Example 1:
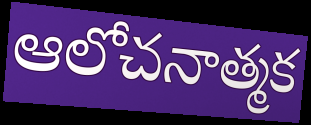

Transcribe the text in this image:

ఆలోచనాత్మక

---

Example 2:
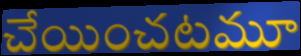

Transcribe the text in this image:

చేయించటమూ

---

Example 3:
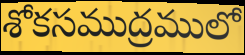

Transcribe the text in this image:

శోకసముద్రములో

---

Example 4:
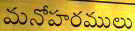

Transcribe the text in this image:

మనోహరములు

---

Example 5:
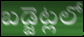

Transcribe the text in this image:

బడ్జెట్లలో